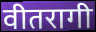
वीतरागी